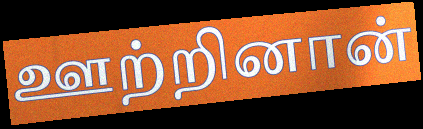
ஊற்றினான்